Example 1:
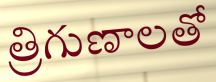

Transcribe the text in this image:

త్రిగుణాలతో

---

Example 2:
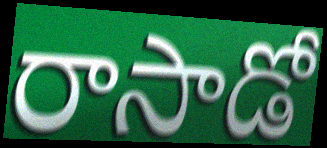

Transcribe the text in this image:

రాసాడో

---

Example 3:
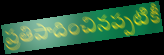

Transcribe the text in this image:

ప్రతిపాదించినప్పటికీ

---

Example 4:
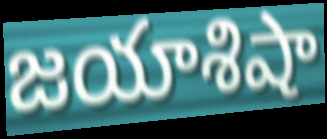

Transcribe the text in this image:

జయాశిషా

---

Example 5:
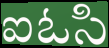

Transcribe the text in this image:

ఐఓసి